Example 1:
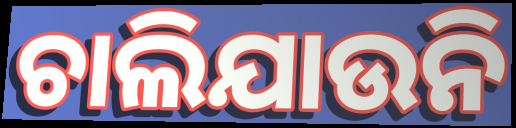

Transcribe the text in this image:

ଚାଲିଯାଉନି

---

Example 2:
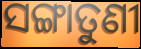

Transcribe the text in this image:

ସଙ୍ଗାତୁଣୀ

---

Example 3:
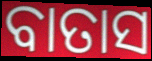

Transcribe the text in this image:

ବାତାସ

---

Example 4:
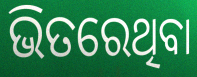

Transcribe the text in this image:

ଭିତରେଥିବା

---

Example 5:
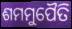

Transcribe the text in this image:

ଶମମୁପୈତି